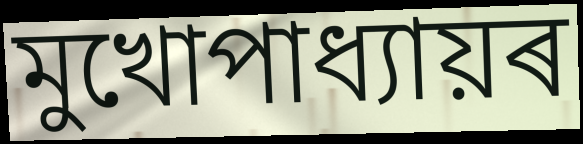
মুখোপাধ্যায়ৰ